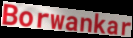
Borwankar